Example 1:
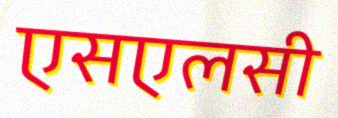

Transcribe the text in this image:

एसएलसी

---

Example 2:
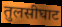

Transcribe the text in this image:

तुलसीघाट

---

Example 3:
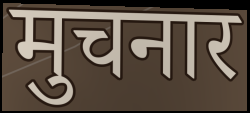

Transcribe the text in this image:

मुचनार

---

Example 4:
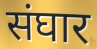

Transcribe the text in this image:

संघार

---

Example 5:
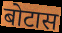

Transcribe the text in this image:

बोटास